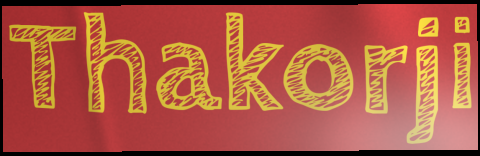
Thakorji